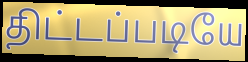
திட்டப்படியே